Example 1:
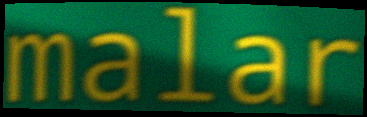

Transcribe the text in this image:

malar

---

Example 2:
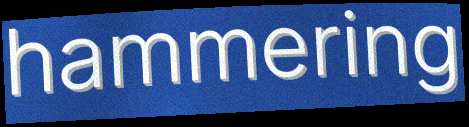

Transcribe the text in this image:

hammering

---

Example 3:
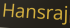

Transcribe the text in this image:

Hansraj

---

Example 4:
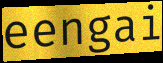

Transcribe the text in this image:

eengai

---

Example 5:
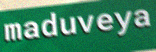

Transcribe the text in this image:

maduveya